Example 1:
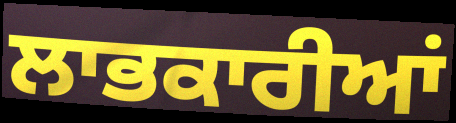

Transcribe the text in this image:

ਲਾਭਕਾਰੀਆਂ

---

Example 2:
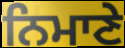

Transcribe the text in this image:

ਨਿਮਾਣੇ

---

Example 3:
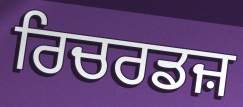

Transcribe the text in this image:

ਰਿਚਰਡਜ਼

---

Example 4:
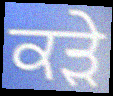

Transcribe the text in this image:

ਕੜੇ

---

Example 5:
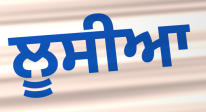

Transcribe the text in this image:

ਲੂਸੀਆ